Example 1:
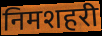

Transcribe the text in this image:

निमशहरी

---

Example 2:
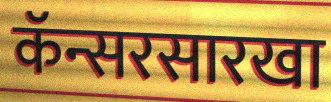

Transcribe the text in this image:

कॅन्सरसारखा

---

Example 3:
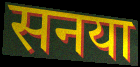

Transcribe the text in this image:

सनया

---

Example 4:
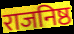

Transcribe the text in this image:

राजनिष्ठ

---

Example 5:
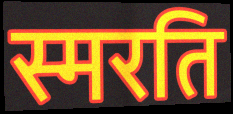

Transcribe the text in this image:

स्मरति